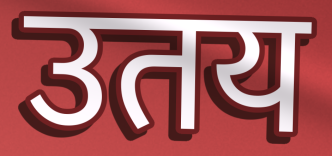
उतय